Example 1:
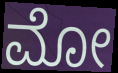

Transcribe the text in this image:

ಮೋ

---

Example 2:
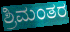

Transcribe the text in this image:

ಶ್ರಿಮಂತರ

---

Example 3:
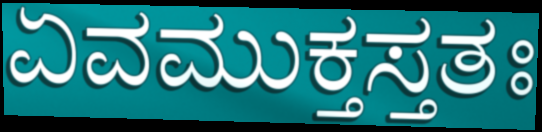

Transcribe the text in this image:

ಏವಮುಕ್ತಸ್ತತಃ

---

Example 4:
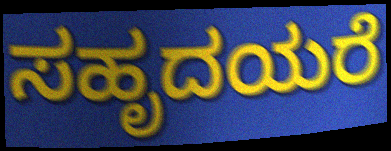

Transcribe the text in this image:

ಸಹೃದಯರೆ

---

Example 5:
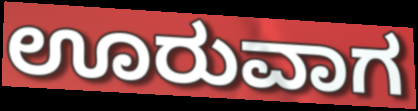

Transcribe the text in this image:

ಊರುವಾಗ